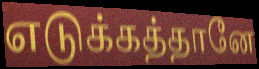
எடுக்கத்தானே